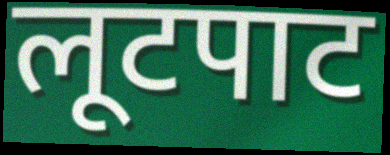
लूटपाट